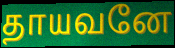
தாயவனே